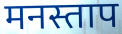
मनस्ताप